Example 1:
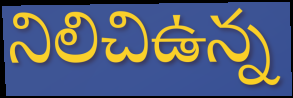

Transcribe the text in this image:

నిలిచిఉన్న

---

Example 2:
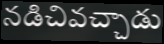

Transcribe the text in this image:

నడిచివచ్చాడు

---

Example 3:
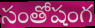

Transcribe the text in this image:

సంతోషంగ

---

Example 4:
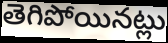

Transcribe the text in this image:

తెగిపోయినట్లు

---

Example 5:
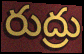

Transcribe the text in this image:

రుద్రు